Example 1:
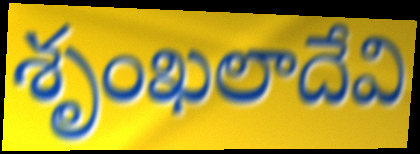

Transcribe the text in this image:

శృంఖలాదేవి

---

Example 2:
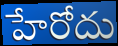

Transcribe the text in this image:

హేరోదు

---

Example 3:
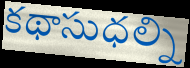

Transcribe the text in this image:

కథాసుధల్ని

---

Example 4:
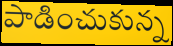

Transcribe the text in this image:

పాడించుకున్న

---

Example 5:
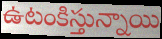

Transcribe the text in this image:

ఉటంకిస్తున్నాయి